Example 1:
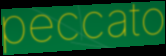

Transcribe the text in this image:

peccato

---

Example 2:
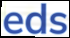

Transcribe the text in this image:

eds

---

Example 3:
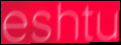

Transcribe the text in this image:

eshtu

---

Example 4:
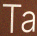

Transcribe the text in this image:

Ta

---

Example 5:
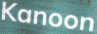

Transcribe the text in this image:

Kanoon